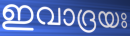
ഇവാദ്രയഃ